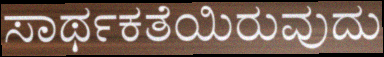
ಸಾರ್ಥಕತೆಯಿರುವುದು